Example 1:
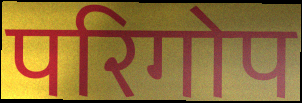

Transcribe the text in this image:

परिगोप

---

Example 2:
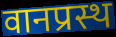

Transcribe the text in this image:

वानप्रस्थ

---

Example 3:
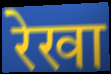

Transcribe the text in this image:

रेखा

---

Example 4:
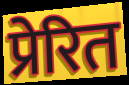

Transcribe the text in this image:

प्रेरित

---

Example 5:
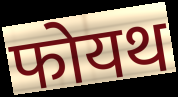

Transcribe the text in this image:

फोयथ